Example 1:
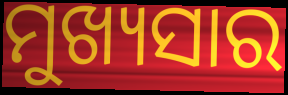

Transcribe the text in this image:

ମୁଖ୍ୟସାର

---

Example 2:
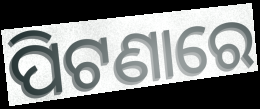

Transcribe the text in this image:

ପିଟଣାରେ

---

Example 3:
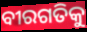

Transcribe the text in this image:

ବୀରଗତିକୁ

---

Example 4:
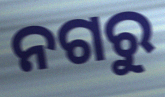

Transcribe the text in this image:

ନଗରୁ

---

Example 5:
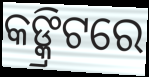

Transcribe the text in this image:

କଙ୍କ୍ରିଟରେ